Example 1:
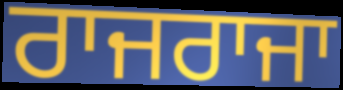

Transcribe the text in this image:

ਰਾਜਰਾਜਾ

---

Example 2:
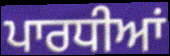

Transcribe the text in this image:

ਪਾਰਧੀਆਂ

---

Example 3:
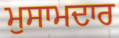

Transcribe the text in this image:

ਮੁਸਾਮਦਾਰ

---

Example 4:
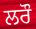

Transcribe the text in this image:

ਲਰੌ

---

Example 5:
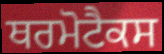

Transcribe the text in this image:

ਥਰਮੋਟੈਕਸ